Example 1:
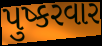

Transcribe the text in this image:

પુષ્કરવાર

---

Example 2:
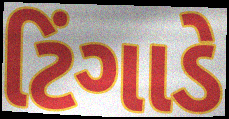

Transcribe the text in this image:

ટિંગાડે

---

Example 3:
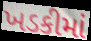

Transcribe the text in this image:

ખડકીમાં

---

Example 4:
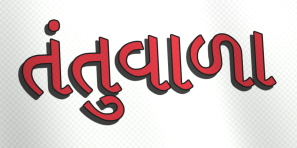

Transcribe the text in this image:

તંતુવાળા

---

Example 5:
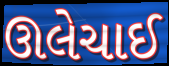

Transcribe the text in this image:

ઊલેચાઈ